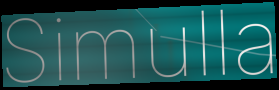
Simulla